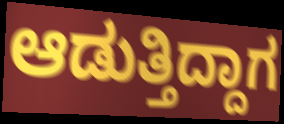
ಆಡುತ್ತಿದ್ದಾಗ